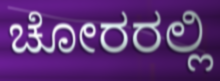
ಚೋರರಲ್ಲಿ